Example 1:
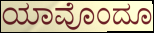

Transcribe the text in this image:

ಯಾವೊಂದೂ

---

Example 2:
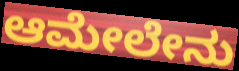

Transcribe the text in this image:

ಆಮೇಲೇನು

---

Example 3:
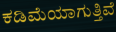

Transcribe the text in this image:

ಕಡಿಮೆಯಾಗುತ್ತಿವೆ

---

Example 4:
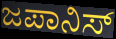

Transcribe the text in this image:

ಜಪಾನಿಸ್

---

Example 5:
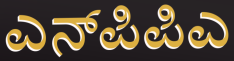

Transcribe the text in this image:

ಎನ್‌ಪಿಪಿಎ